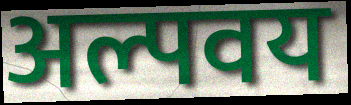
अल्पवय